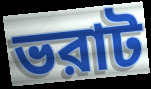
ভরাট